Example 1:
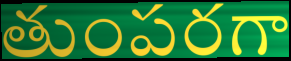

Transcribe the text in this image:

తుంపరగా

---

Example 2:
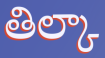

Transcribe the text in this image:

తిల్కా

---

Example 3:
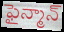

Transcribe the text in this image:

ఫైన్మాన్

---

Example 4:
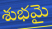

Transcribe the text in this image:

శుభమై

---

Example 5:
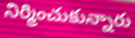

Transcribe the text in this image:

నిర్మించుకున్నారు